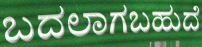
ಬದಲಾಗಬಹುದೆ